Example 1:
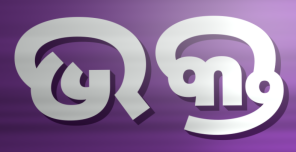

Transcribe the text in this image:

ଭକ୍ତ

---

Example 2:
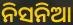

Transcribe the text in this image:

ନିସନିଆ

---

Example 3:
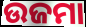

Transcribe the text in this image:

ଉଜମା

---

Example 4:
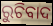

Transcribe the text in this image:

ରୁଚିବାଦ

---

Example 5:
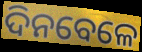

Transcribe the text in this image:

ଦିନବେଳେ